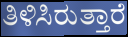
ತಿಳಿಸಿರುತ್ತಾರೆ